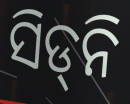
ସିଡ୍‍ନି